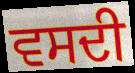
ਵਸਦੀ